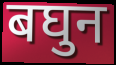
बघुन